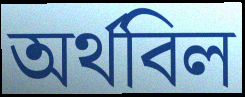
অর্থবিল